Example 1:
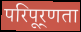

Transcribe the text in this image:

परिपूर्णता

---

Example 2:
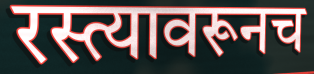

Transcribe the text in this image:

रस्त्यावरूनच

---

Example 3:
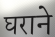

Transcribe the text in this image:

घराने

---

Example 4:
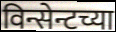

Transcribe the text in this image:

विन्सेन्टच्या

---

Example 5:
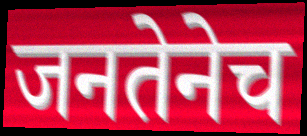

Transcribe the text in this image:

जनतेनेच